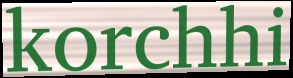
korchhi